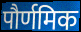
पौर्णमिक